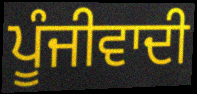
ਪੂੰਜੀਵਾਦੀ